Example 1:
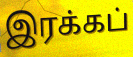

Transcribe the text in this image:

இரக்கப்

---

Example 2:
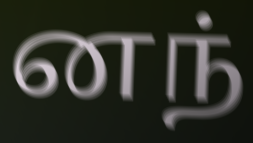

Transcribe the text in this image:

னந்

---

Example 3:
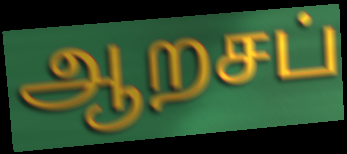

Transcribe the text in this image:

ஆறசப்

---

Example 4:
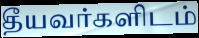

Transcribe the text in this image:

தீயவர்களிடம்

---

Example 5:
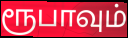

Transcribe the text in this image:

ரூபாவும்